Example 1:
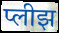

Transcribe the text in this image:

प्लीझ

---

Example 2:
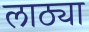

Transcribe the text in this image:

लाठ्या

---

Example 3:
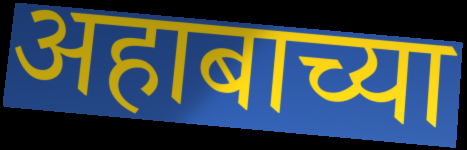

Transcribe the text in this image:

अहाबाच्या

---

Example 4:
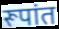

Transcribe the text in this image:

रूपांत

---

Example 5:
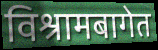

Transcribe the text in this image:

विश्रामबागेत